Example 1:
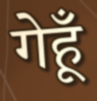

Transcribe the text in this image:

गेहूँ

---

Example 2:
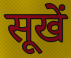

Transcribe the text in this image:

सूखें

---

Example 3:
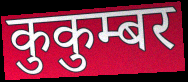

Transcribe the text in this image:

कुकुम्बर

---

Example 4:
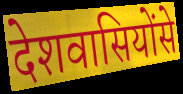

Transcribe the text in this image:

देशवासियोंसे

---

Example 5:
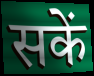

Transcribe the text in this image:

सकें